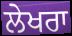
ਲੇਖਰਾ